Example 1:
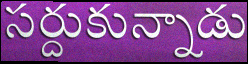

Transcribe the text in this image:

సర్దుకున్నాడు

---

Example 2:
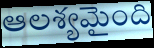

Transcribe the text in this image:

ఆలశ్యమైంది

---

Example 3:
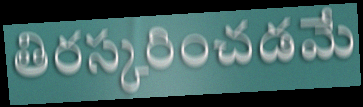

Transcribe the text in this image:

తిరస్కరించడమే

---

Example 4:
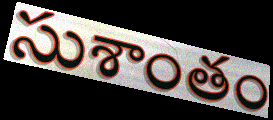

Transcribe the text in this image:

సుశాంతం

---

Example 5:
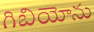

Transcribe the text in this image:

గిబియోను